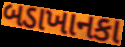
બડાખાનકા